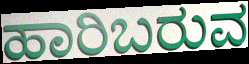
ಹಾರಿಬರುವ